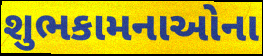
શુભકામનાઓના